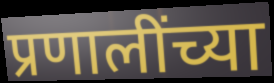
प्रणालींच्या